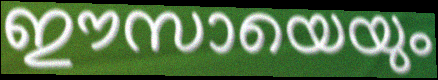
ഈസായെയും